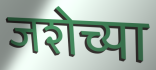
जशेच्या